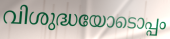
വിശുദ്ധയോടൊപ്പം